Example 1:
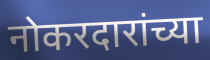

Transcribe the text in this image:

नोकरदारांच्या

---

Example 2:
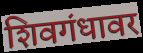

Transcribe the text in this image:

शिवगंधावर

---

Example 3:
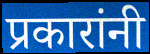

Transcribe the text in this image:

प्रकारांनी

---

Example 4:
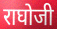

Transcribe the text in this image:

राघोजी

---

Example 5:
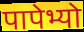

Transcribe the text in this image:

पापेभ्यो